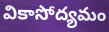
వికాసోద్యమం